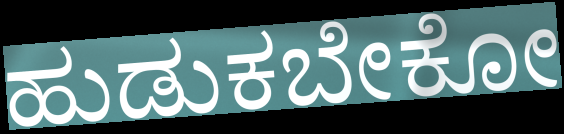
ಹುಡುಕಬೇಕೋ